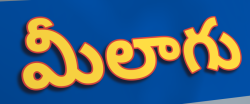
మీలాగు